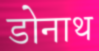
डोनाथ